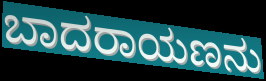
ಬಾದರಾಯಣನು